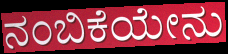
ನಂಬಿಕೆಯೇನು